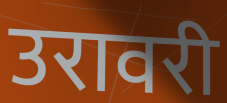
उरावरी